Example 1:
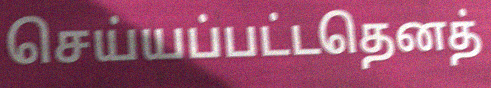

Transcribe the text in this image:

செய்யப்பட்டதெனத்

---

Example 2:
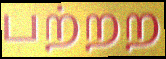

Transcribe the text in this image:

பற்றற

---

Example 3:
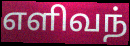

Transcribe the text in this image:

எளிவந்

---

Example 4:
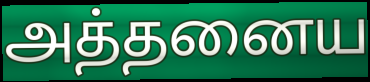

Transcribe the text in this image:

அத்தனைய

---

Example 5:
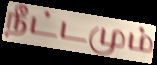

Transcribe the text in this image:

நீட்டமும்